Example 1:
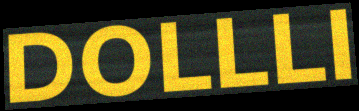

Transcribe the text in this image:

DOLLLI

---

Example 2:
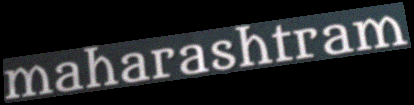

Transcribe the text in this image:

maharashtram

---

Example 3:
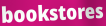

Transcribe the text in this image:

bookstores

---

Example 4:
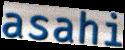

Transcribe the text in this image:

asahi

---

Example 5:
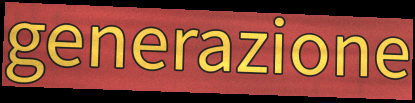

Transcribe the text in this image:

generazione